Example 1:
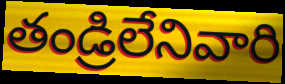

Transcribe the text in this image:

తండ్రిలేనివారి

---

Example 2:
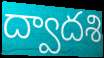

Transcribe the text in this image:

ద్వాదశి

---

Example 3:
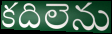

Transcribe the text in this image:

కదిలెను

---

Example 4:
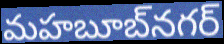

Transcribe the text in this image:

మహబూబ్‌నగర్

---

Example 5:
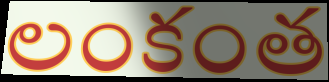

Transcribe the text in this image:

లంకంత